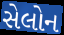
સેલોન